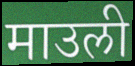
माउली